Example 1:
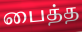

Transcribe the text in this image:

பைத்த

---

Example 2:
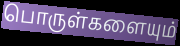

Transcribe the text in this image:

பொருள்களையும்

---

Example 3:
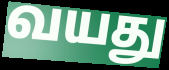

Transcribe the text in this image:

வயது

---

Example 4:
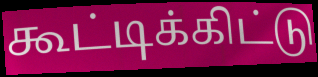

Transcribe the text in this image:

கூட்டிக்கிட்டு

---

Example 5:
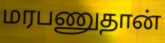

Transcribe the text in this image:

மரபணுதான்